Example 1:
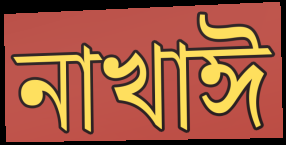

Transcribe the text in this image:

নাখাঈ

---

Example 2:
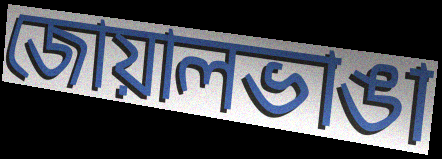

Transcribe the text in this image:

জোয়ালভাঙা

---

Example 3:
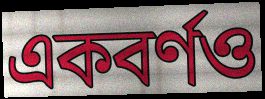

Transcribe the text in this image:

একবর্ণও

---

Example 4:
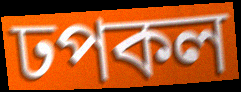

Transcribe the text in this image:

ঢপকল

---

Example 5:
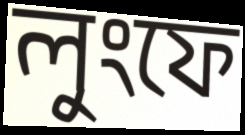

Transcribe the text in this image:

লুংফে